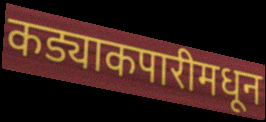
कड्याकपारीमधून